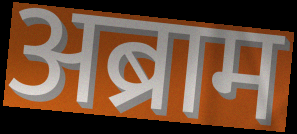
अब्राम